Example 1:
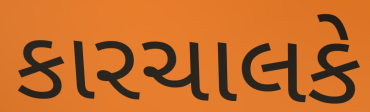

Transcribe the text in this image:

કારચાલકે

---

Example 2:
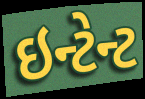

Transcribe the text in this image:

ઇન્ટેન્ટ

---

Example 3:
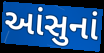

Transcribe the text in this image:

આંસુનાં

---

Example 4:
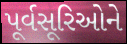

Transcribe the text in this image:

પૂર્વસૂરિઓને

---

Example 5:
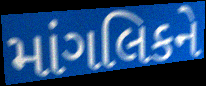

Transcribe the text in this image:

માંગલિકને